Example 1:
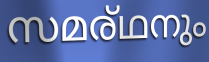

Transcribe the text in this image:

സമര്ഥനും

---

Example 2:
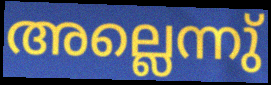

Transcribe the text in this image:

അല്ലെന്നു്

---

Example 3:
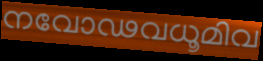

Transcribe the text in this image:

നവോഢവധൂമിവ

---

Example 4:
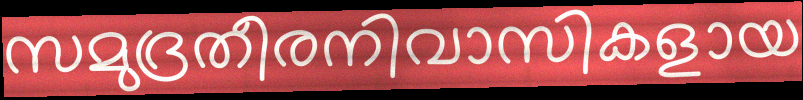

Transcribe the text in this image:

സമുദ്രതീരനിവാസികളായ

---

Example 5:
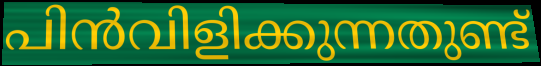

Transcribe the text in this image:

പിൻവിളിക്കുന്നതുണ്ട്